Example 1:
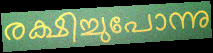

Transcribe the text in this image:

രക്ഷിച്ചുപോന്നു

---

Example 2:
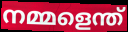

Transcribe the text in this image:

നമ്മളെന്ത്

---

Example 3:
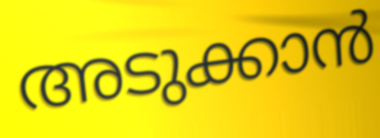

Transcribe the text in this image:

അടുക്കാൻ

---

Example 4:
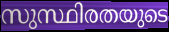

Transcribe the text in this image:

സുസ്ഥിരതയുടെ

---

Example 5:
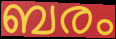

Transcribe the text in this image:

ബരം